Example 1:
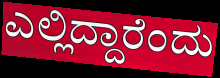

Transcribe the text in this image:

ಎಲ್ಲಿದ್ದಾರೆಂದು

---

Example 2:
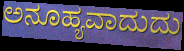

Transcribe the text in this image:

ಅನೂಹ್ಯವಾದುದು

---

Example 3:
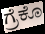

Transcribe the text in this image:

ಗ್ರೆಕೊ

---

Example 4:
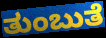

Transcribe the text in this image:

ತುಂಬುತೆ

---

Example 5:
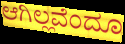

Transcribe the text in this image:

ಆಗಿಲ್ಲವೆಂದೂ